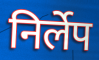
निर्लेप